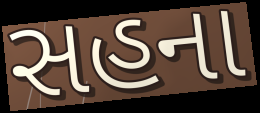
સહના